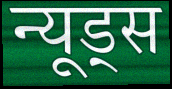
न्यूड्स